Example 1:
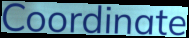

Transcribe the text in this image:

Coordinate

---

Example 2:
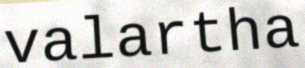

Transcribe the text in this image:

valartha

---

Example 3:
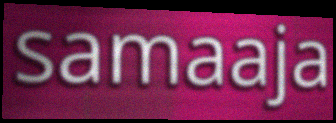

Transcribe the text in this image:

samaaja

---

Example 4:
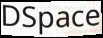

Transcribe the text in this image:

DSpace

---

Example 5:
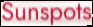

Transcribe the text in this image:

Sunspots